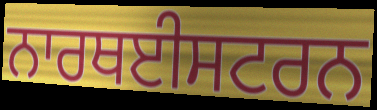
ਨਾਰਥਈਸਟਰਨ